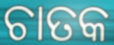
ଚାତକ